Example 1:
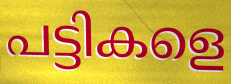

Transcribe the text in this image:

പട്ടികളെ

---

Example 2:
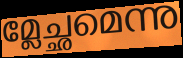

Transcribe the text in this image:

മ്ലേച്ഛമെന്നു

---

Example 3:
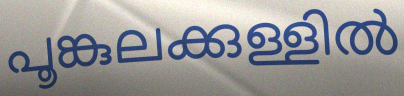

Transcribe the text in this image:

പൂങ്കുലക്കുള്ളിൽ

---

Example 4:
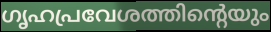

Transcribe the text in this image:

ഗൃഹപ്രവേശത്തിന്റെയും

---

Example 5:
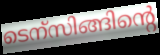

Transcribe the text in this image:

ടെന്സിങ്ങിന്റെ